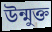
উন্মুক্ত